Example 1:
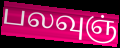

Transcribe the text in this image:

பலவுஞ்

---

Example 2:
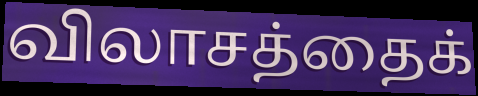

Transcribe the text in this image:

விலாசத்தைக்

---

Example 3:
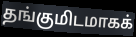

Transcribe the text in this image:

தங்குமிடமாகக்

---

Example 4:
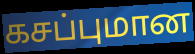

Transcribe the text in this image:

கசப்புமான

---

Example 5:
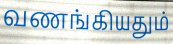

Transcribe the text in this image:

வணங்கியதும்